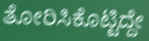
ತೋರಿಸಿಕೊಟ್ಟಿದ್ದೇ